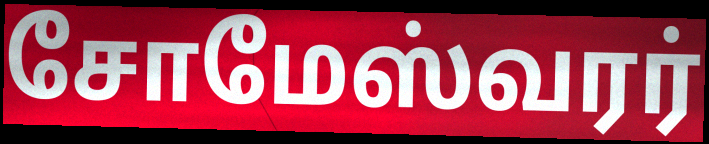
சோமேஸ்வரர்